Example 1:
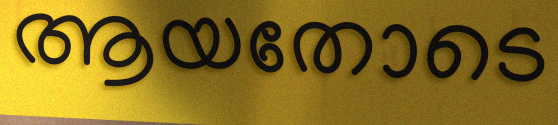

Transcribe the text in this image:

ആയതോടെ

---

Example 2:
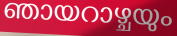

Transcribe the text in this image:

ഞായറാഴ്ചയും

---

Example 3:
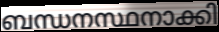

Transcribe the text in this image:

ബന്ധനസ്ഥനാക്കി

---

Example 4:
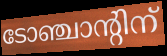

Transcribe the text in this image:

ടോഞ്ചാന്റിന്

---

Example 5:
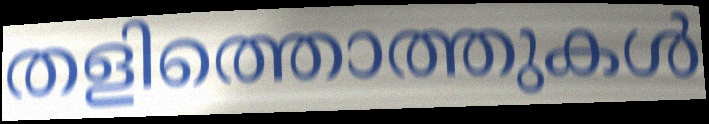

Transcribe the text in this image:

തളിത്തൊത്തുകൾ